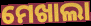
ମେଖାଲା